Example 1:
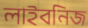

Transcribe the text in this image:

লাইবনিজ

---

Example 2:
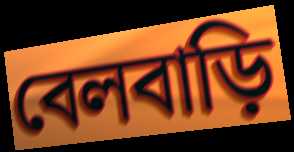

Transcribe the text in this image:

বেলবাড়ি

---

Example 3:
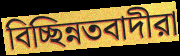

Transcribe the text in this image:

বিচ্ছিন্নতবাদীরা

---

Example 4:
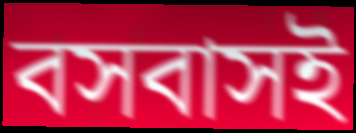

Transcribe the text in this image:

বসবাসই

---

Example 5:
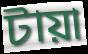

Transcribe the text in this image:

টায়া